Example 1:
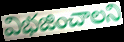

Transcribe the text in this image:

విభజించాలని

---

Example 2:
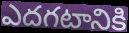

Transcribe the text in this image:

ఎదగటానికి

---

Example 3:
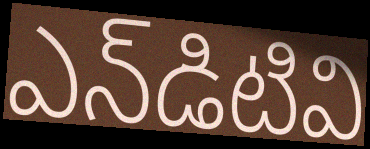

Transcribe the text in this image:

ఎన్‌డిటివి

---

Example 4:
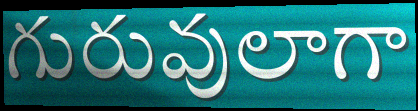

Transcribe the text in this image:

గురువులాగా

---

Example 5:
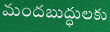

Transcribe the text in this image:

మందబుద్ధులకు